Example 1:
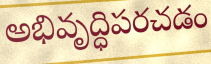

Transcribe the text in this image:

అభివృద్ధిపరచడం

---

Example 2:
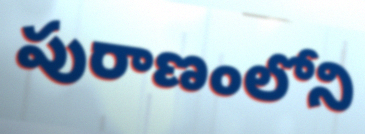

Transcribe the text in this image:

పురాణంలోని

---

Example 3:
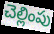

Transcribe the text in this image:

చెల్లింపు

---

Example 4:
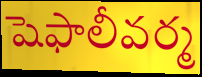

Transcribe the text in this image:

షెఫాలీవర్మ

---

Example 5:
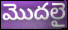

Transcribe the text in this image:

మొదలై